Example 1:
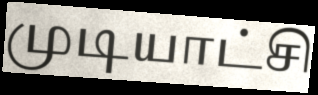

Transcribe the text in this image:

முடியாட்சி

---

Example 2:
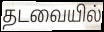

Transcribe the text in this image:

தடவையில்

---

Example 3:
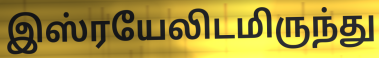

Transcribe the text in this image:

இஸ்ரயேலிடமிருந்து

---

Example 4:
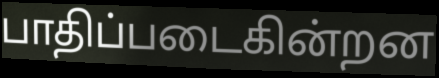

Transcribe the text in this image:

பாதிப்படைகின்றன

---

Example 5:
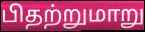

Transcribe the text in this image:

பிதற்றுமாறு